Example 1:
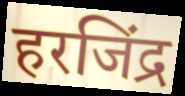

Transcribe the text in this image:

हरजिंद्र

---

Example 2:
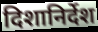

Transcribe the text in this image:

दिशानिर्देश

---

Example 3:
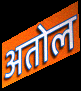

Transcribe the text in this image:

अतोल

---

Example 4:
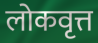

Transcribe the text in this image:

लोकवृत्त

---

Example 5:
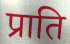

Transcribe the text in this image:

प्राति